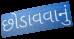
છોડાવવાનું